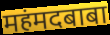
महंमदबाबा